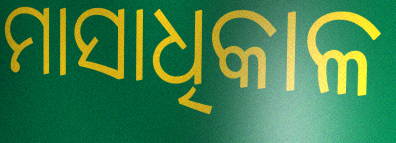
ମାସାଧିକାଳ